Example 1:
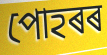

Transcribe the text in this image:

পোহৰৰ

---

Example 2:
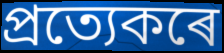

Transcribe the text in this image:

প্ৰত্যেকৰে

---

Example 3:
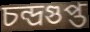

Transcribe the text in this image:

চন্দ্ৰগুপ্ত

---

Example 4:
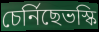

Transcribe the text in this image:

চেৰ্নিছেভস্কি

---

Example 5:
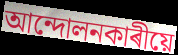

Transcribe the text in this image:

আন্দোলনকাৰীয়ে